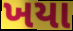
ખયા